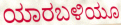
ಯಾರಬಳಿಯೂ